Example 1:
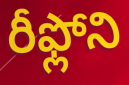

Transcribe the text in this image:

రీఫ్లోని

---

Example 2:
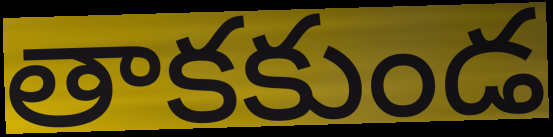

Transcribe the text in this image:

తాకకుండ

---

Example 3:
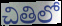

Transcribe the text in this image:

చితిలో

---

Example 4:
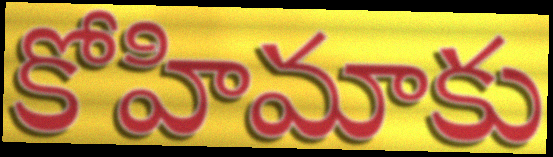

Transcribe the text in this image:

కోహిమాకు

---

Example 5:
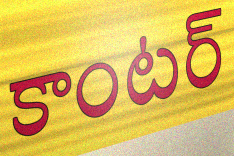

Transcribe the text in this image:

కాంటర్